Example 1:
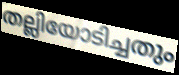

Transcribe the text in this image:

തല്ലിയോടിച്ചതും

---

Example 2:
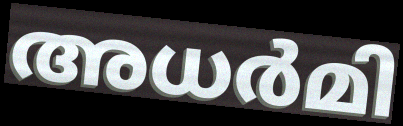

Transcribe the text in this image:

അധർമി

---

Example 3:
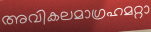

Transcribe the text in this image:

അവികലമാഗ്രഹമറ്റാ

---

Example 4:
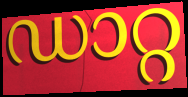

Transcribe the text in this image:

ഡാറ്റ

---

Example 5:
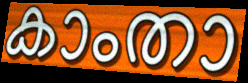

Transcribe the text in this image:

കാംതാ